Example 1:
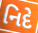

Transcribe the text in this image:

નિદે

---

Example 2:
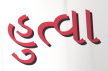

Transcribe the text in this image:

હુત્વા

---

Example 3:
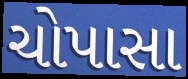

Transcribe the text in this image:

ચોપાસા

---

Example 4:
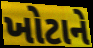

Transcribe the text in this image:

ખોટાને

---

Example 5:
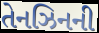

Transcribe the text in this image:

તેનઝિનની